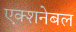
एक्शनेबल